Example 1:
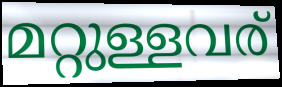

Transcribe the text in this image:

മറ്റുള്ളവര്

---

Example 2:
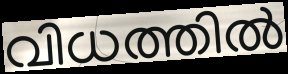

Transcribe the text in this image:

വിധത്തിൽ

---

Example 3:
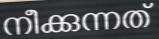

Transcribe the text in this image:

നീക്കുന്നത്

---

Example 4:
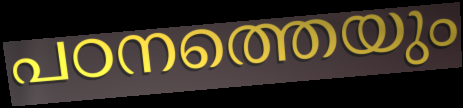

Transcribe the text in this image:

പഠനത്തെയും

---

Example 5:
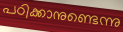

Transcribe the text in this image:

പഠിക്കാനുണ്ടെന്നു